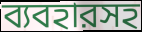
ব্যবহারসহ